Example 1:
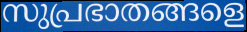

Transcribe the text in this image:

സുപ്രഭാതങ്ങളെ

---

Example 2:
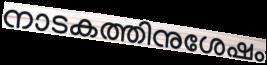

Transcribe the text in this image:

നാടകത്തിനുശേഷം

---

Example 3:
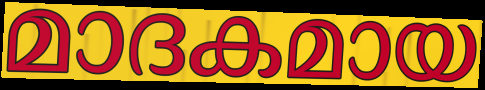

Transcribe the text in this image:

മാദകമായ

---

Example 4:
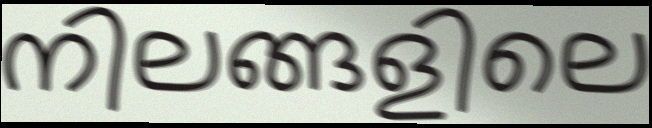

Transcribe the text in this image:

നിലങ്ങളിലെ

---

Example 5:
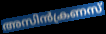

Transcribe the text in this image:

അസിൻക്രണസ്